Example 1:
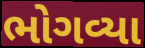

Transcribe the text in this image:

ભોગવ્યા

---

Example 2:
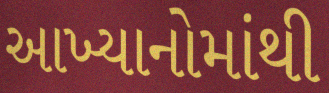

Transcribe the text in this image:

આખ્યાનોમાંથી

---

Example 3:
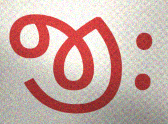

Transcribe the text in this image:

જીઃ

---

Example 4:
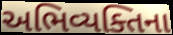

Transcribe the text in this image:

અભિવ્યક્તિના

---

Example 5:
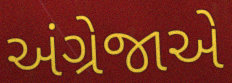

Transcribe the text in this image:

અંગ્રેજાએ